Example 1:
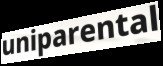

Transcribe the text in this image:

uniparental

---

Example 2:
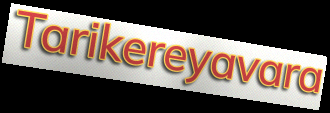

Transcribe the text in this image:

Tarikereyavara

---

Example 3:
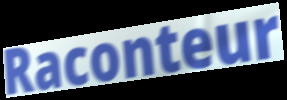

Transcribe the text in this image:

Raconteur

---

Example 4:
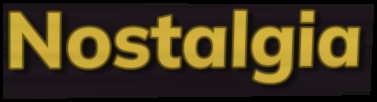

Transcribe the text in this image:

Nostalgia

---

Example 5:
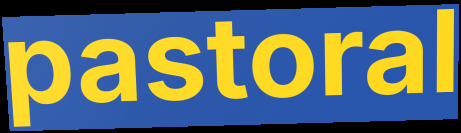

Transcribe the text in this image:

pastoral